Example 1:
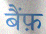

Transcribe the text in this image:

बैंफ़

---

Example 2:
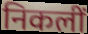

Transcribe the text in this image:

निकलीं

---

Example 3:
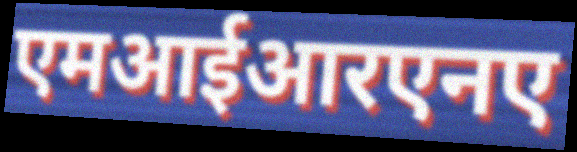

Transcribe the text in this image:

एमआईआरएनए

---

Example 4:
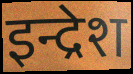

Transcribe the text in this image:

इन्द्रेश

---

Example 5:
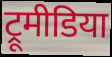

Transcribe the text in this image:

ट्रूमीडिया